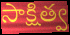
సాక్షిత్వ